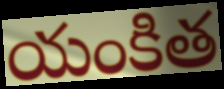
యంకిత